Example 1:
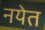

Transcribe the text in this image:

नयेत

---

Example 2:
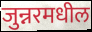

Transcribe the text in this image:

जुन्नरमधील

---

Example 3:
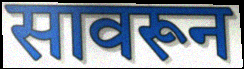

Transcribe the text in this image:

सावरून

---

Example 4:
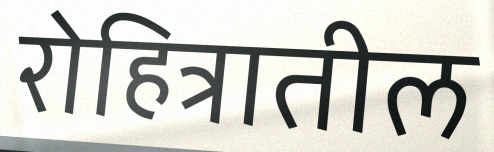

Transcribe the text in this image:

रोहित्रातील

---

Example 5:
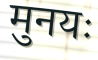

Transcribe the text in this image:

मुनयः